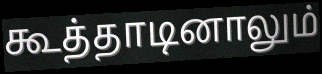
கூத்தாடினாலும்